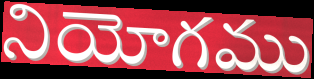
నియోగము